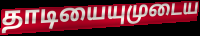
தாடியையுமுடைய